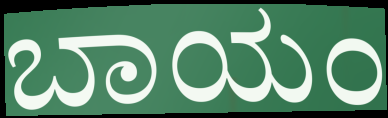
ಬಾಯಂ